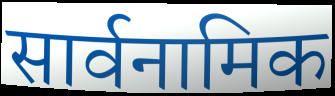
सार्वनामिक